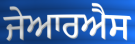
ਜੇਆਰਐਸ